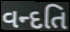
વન્દતિ